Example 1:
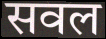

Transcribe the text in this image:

सवल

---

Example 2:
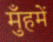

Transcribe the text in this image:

मुँहमें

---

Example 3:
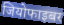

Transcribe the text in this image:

जियोफाइबर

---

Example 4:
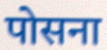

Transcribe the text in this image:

पोसना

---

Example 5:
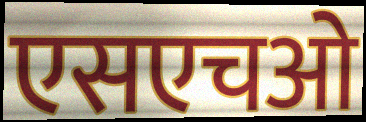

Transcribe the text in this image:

एसएचओ